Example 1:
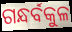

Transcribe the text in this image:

ଗନ୍ଧର୍ବକୁଳ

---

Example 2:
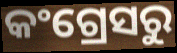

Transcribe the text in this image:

କଂଗ୍ରେସରୁ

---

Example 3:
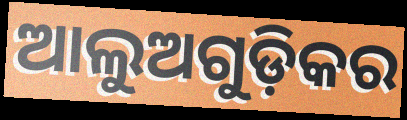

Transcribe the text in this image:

ଆଲୁଅଗୁଡ଼ିକର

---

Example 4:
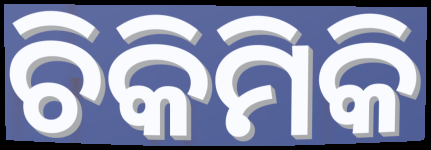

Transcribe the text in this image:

ଚିକିମିକି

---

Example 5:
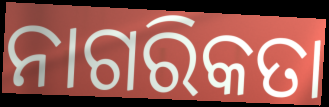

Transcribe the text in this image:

ନାଗରିକତା